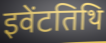
इवेंटतिथि